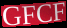
GFCF